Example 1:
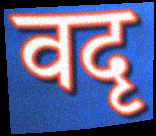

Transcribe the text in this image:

वदृ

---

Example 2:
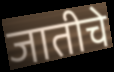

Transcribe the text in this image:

जातीचे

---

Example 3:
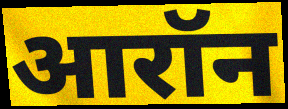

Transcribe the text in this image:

आरॉन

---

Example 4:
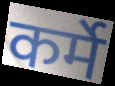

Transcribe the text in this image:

कर्मे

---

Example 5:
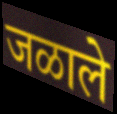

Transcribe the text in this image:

जळाले